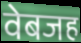
वेबजह